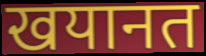
खयानत